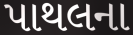
પાથલના